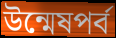
উন্মেষপর্ব